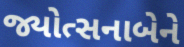
જ્યોત્સનાબેને